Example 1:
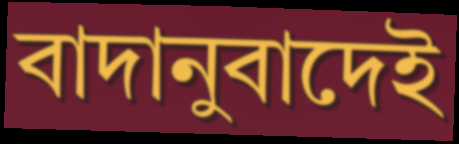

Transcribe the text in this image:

বাদানুবাদেই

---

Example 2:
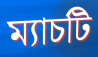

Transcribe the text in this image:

ম্যাচটি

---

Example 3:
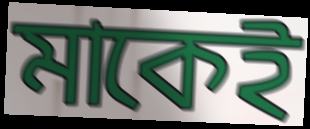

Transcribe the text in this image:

মাকেই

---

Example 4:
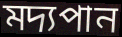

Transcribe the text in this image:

মদ্যপান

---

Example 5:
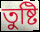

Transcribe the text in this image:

তুষ্টি